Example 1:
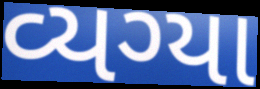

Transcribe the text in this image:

વ્યગ્યા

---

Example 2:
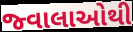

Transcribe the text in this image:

જ્વાલાઓથી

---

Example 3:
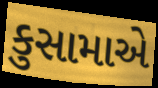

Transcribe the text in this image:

કુસામાએ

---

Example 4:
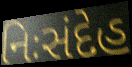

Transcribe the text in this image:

નિઃસંદેહ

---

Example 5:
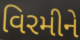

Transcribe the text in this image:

વિરમીને